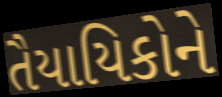
તૈયાયિકોને